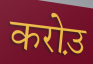
करोउ़